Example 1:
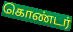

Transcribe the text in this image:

கொண்டர்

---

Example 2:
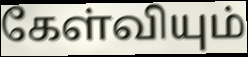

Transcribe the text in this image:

கேள்வியும்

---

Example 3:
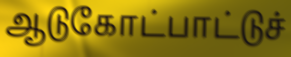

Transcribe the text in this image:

ஆடுகோட்பாட்டுச்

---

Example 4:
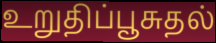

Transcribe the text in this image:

உறுதிப்பூசுதல்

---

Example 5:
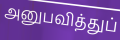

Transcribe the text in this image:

அனுபவித்துப்